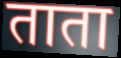
ताता